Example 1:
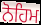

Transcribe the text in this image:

ਨੋਹਿਮ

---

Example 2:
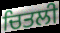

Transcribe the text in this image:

ਚਿਤਲੀ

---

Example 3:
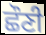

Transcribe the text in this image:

ਛੌਣੀ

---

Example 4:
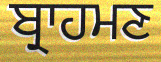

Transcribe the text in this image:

ਬ੍ਰਾਹਮਣ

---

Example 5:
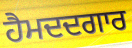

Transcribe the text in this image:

ਹੈਮਦਦਗਾਰ